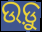
ଉଡ଼ୁ